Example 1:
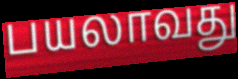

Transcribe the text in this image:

பயலாவது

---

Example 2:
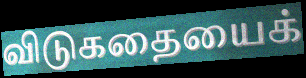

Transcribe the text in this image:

விடுகதையைக்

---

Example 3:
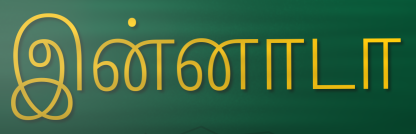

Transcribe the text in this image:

இன்னாடா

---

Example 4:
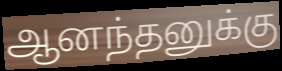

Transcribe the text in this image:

ஆனந்தனுக்கு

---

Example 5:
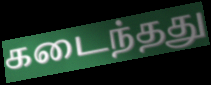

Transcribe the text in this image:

கடைந்தது